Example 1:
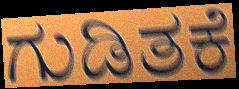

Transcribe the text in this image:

ಗುಡಿತಕೆ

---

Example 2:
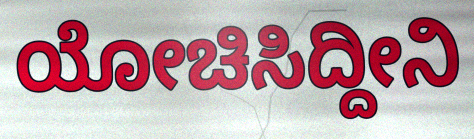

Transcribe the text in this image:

ಯೋಚಿಸಿದ್ದೀನಿ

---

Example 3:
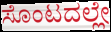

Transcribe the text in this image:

ಸೊಂಟದಲ್ಲೇ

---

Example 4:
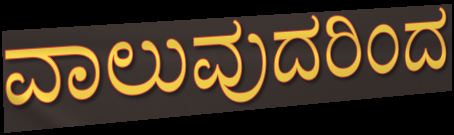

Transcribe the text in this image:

ವಾಲುವುದರಿಂದ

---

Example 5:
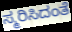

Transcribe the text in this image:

ಸ್ಮರಿಸಿದಂತೆ